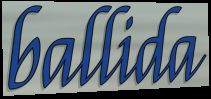
ballida